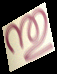
ന്തു